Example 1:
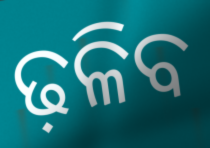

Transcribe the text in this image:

ଢ଼ଳିବ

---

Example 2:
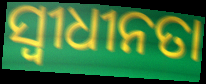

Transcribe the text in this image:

ସ୍ୱୀଧୀନତା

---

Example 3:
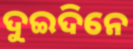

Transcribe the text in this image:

ଦୁଇଦିନେ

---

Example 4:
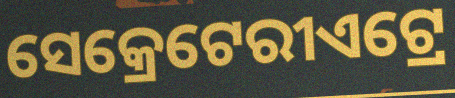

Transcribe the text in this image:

ସେକ୍ରେଟେରୀଏଟ୍ରେ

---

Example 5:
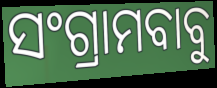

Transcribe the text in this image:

ସଂଗ୍ରାମବାବୁ